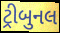
ટ્રીબુનલ